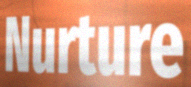
Nurture